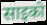
साइको